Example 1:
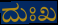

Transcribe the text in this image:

ದುಃಖ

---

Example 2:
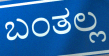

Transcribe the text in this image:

ಬಂತಲ್ಲ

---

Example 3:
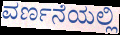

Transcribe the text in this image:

ವರ್ಣನೆಯಲ್ಲಿ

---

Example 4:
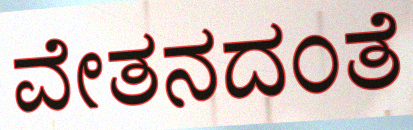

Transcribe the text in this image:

ವೇತನದಂತೆ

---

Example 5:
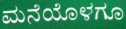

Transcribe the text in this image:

ಮನೆಯೊಳಗೂ